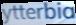
ytterbia